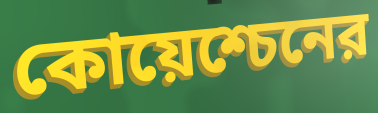
কোয়েশ্চেনের